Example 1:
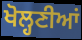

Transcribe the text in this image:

ਖੋਲ੍ਹਣੀਆਂ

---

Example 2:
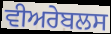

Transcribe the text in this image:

ਵੀਅਰੇਬਲਸ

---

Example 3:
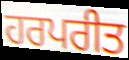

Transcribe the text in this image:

ਹਰਪਰੀਤ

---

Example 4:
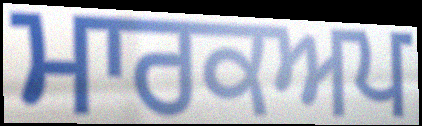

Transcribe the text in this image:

ਮਾਰਕਅਪ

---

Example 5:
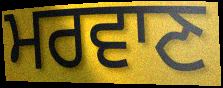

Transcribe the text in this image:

ਮਰਵਾਣ